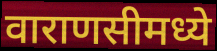
वाराणसीमध्ये